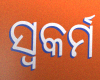
ସ୍ଵକର୍ମ